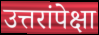
उत्तरांपेक्षा